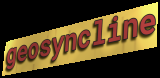
geosyncline